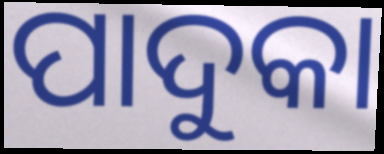
ପାଦୁକା